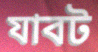
যাবট